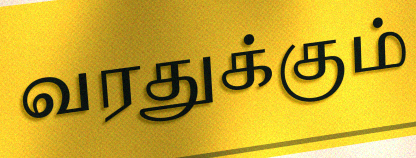
வரதுக்கும்